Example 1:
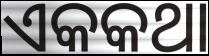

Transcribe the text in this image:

ଏକକଥା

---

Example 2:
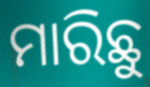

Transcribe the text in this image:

ମାରିଛୁ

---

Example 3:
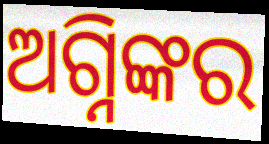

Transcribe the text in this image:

ଅଗ୍ନିଙ୍କର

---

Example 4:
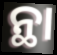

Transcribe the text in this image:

ନ୍ଥା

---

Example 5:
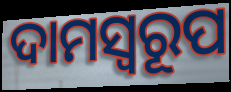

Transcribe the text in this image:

ଦାମସ୍ୱରୂପ